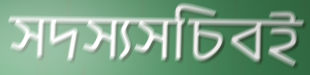
সদস্যসচিবই